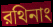
রথিনাং